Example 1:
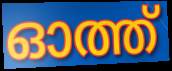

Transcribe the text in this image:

ഓത്ത്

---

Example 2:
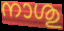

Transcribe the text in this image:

നാശു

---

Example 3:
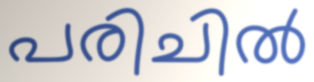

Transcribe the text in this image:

പരിചിൽ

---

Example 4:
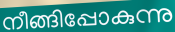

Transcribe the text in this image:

നീങ്ങിപ്പോകുന്നു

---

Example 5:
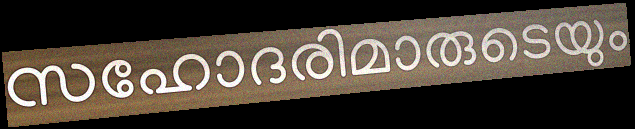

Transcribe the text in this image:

സഹോദരിമാരുടെയും